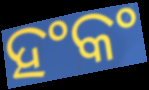
ହଂକଂ